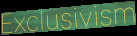
Exclusivism